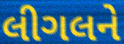
લીગલને